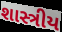
શાસ્ત્રીય